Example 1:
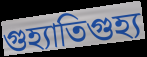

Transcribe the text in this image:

গুহ্যাতিগুহ্য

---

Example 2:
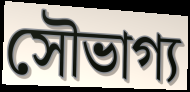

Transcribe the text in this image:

সৌভাগ্য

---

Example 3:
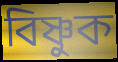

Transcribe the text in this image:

বিষ্ণুক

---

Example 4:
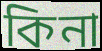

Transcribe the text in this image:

কিনা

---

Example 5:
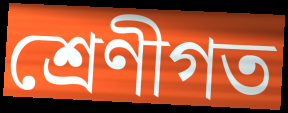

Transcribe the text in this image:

শ্ৰেণীগত